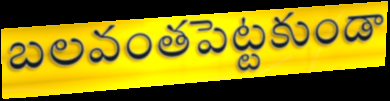
బలవంతపెట్టకుండా